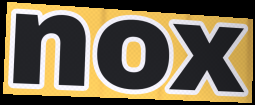
nox